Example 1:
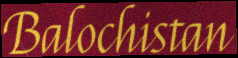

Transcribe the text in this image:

Balochistan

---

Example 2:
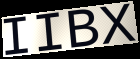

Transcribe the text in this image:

IIBX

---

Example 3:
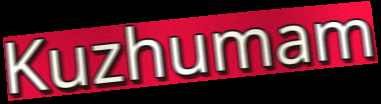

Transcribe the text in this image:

Kuzhumam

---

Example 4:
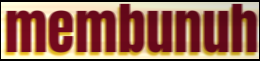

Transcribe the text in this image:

membunuh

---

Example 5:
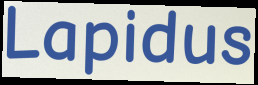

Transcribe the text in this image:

Lapidus